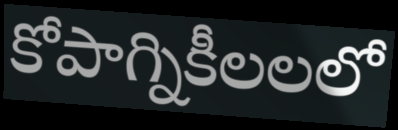
కోపాగ్నికీలలలో